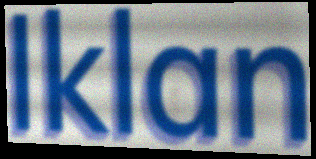
Iklan